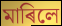
মাৰিলে